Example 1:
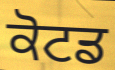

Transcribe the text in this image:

ਕੋਟਡ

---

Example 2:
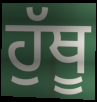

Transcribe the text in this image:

ਹੁੱਥੂ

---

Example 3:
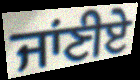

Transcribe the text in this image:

ਜਾਂਣੀਏ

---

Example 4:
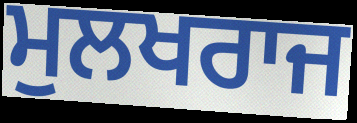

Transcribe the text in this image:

ਮੁਲਖਰਾਜ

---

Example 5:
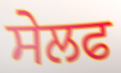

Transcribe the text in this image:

ਸੇਲਫ